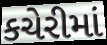
કચેરીમાં